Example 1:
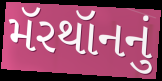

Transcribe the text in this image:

મૅરથૉનનું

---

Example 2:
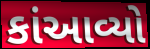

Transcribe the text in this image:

કાંઆવ્યો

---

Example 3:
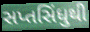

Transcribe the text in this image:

સપ્તસિંધુથી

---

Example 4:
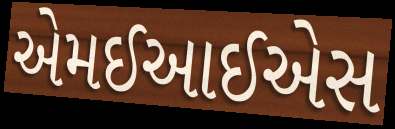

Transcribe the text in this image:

એમઈઆઈએસ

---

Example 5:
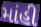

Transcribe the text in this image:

માંહી